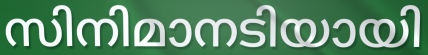
സിനിമാനടിയായി